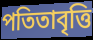
পতিতাবৃত্তি